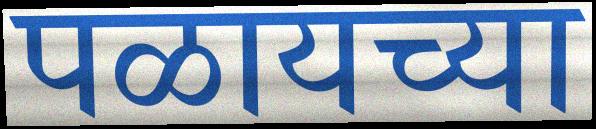
पळायच्या